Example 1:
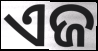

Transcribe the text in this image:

ଏଜ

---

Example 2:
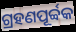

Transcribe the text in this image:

ଗ୍ରହଣପୂର୍ବ୍ବକ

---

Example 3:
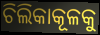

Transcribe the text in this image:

ଚିଲିକାକୂଳକୁ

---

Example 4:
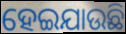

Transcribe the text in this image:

ହେଇଯାଉଛି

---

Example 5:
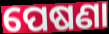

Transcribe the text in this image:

ପେଷଣା